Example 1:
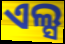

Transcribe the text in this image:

ଏଲ୍ସ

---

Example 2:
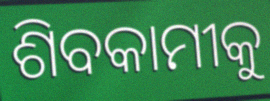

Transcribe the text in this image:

ଶିବକାମୀକୁ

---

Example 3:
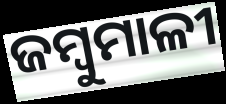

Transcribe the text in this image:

ଜମ୍ବୁମାଳୀ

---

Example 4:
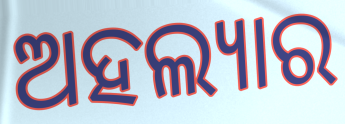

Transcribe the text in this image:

ଅହଲ୍ୟାର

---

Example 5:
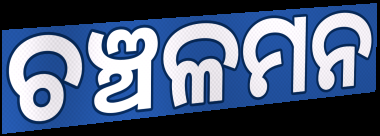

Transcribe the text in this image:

ଚଞ୍ଚଳମନ